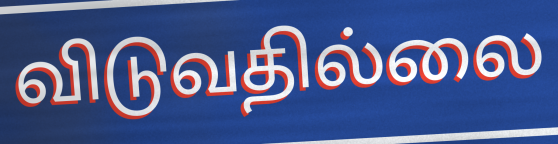
விடுவதில்லை